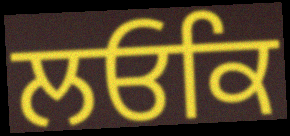
ਲਓਕਿ